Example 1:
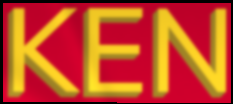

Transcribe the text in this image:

KEN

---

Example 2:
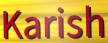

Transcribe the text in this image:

Karish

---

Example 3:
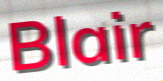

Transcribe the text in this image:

Blair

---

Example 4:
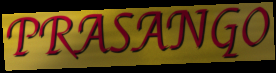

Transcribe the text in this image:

PRASANGO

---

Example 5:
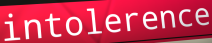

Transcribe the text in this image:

intolerence